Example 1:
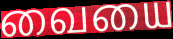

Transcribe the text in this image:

வையை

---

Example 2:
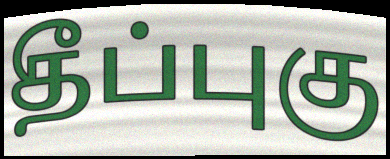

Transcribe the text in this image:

தீப்புகு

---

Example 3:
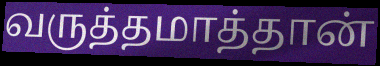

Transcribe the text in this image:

வருத்தமாத்தான்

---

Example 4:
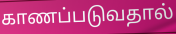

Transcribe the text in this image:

காணப்படுவதால்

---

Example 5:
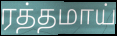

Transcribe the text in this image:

ரத்தமாய்